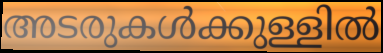
അടരുകൾക്കുള്ളിൽ